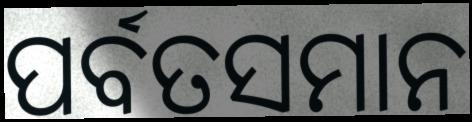
ପର୍ବତସମାନ